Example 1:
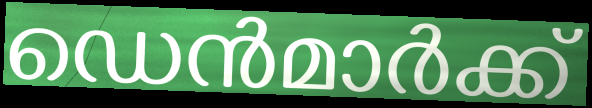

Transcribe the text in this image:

ഡെൻമാർക്ക്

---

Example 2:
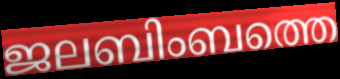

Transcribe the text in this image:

ജലബിംബത്തെ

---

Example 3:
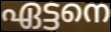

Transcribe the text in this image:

ഏട്ടനെ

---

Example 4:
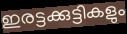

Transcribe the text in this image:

ഇരട്ടക്കുട്ടികളും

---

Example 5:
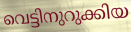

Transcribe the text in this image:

വെട്ടിനുറുക്കിയ